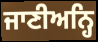
ਜਾਣੀਅਨ੍ਹਿ